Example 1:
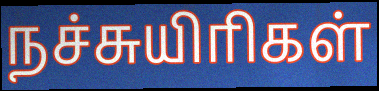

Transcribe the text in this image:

நச்சுயிரிகள்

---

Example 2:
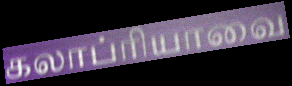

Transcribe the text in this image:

கலாப்ரியாவை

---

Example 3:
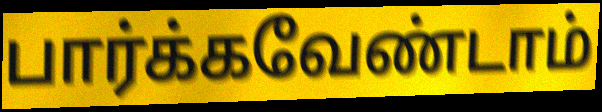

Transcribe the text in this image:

பார்க்கவேண்டாம்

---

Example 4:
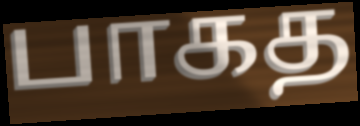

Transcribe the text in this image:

பாகத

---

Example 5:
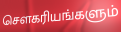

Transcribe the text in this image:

சௌகரியங்களும்